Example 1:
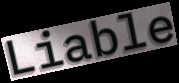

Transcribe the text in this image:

Liable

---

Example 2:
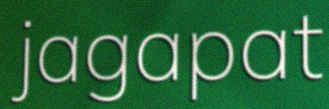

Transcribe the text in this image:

jagapat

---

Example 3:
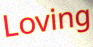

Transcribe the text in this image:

Loving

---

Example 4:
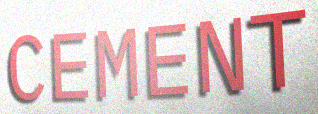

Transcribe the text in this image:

CEMENT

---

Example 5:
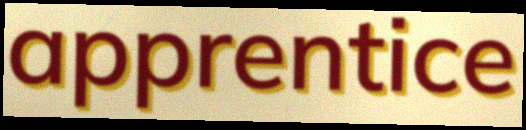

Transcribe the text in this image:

apprentice